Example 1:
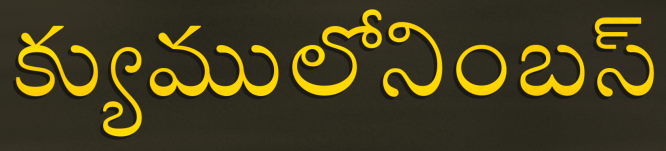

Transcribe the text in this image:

క్యుములోనింబస్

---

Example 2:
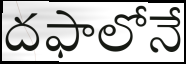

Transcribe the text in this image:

దఫాలోనే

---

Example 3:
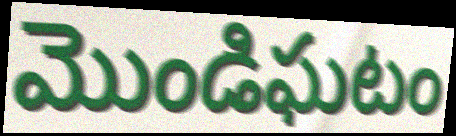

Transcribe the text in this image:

మొండిఘటం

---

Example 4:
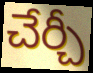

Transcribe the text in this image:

చేర్చీ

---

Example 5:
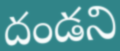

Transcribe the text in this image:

దండని